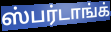
ஸ்பர்டாங்க்